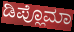
ಡಿಪ್ಲೊಮಾ